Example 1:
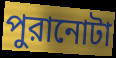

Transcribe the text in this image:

পুরানোটা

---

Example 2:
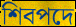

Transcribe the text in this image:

শিবপদে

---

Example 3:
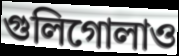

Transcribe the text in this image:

গুলিগোলাও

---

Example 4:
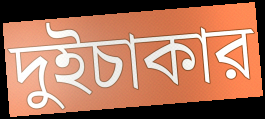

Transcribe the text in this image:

দুইচাকার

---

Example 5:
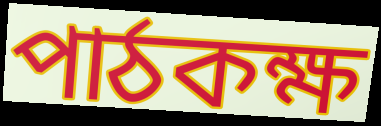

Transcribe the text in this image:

পাঠকক্ষ